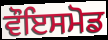
ਵੌਇਸਮੋਡ